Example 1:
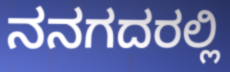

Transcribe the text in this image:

ನನಗದರಲ್ಲಿ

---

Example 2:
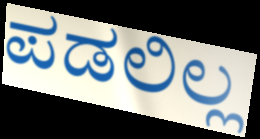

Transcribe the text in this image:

ಪಡಲಿಲ್ಲ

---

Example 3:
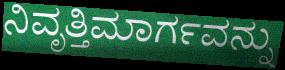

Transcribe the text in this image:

ನಿವೃತ್ತಿಮಾರ್ಗವನ್ನು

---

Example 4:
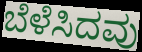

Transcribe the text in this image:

ಬೆಳೆಸಿದವು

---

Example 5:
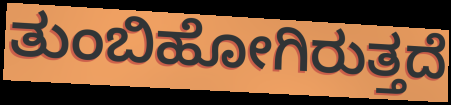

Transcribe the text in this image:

ತುಂಬಿಹೋಗಿರುತ್ತದೆ